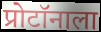
प्रोटॉनाला